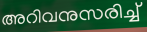
അറിവനുസരിച്ച്